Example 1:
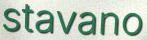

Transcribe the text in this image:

stavano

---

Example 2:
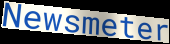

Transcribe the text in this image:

Newsmeter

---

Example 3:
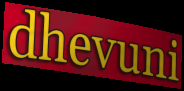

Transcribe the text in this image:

dhevuni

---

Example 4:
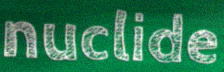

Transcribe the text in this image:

nuclide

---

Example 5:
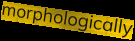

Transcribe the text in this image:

morphologically